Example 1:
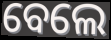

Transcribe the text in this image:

ବେଲେ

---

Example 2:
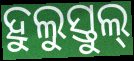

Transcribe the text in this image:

ହୁଲୁସ୍ତୁଲ୍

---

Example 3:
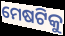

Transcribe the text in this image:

ମେଷଟିକୁ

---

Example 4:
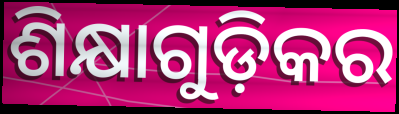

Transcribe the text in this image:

ଶିକ୍ଷାଗୁଡ଼ିକର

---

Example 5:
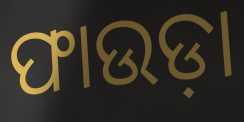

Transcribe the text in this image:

ଫାଉଡ଼ା